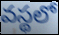
వస్థలో